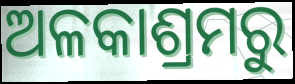
ଅଳକାଶ୍ରମରୁ